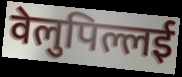
वेलुपिल्लई